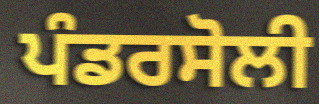
ਪੰਡਰਸੋਲੀ